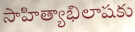
సాహిత్యాభిలాషకు